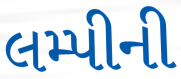
લમ્પીની